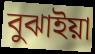
বুঝাইয়া